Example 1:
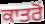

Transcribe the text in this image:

ਕਾਤਰੋੰ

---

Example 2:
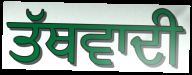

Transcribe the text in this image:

ਤੱਥਵਾਦੀ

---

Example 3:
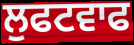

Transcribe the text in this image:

ਲੁਫਟਵਾਫ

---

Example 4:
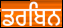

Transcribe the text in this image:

ਡਰਬਿਨ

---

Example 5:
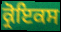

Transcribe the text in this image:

ਕ੍ਰੋਇਕਸ